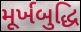
મૂર્ખબુદ્ધિ